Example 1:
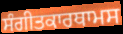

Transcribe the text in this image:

ਸੰਗੀਤਕਾਰਥਾਮਸ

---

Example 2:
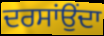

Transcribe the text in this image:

ਦਰਸਾਂਉਂਦਾ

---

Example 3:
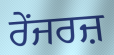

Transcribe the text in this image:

ਰੇਂਜਰਜ਼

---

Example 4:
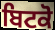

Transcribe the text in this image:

ਬਿਟਕੋ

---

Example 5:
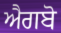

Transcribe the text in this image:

ਐਗਬੋ